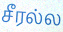
சீரல்ல